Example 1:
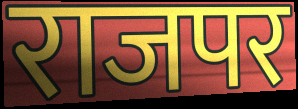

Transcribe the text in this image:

राजपर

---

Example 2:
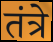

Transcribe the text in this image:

तंत्रे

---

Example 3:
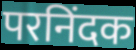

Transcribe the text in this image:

परनिंदक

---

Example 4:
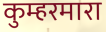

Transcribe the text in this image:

कुम्हरमारा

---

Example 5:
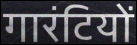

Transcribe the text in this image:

गारंटियों